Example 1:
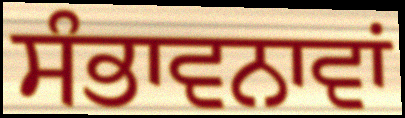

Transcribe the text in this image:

ਸੰਭਾਵਨਾਵਾਂ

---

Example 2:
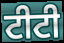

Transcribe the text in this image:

ਟੀਟੀ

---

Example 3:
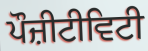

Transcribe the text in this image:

ਪੌਜ਼ੀਟੀਵਿਟੀ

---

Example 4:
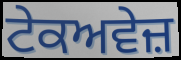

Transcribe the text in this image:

ਟੇਕਅਵੇਜ਼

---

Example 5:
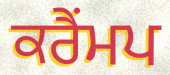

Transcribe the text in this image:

ਕਰੈਂਮਪ